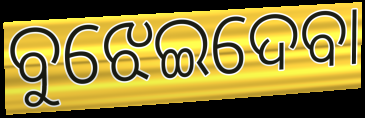
ବୁଝେଇଦେବା